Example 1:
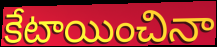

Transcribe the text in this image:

కేటాయించినా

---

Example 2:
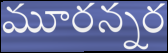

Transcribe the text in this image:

మూరన్నర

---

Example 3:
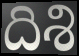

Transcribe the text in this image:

దిశి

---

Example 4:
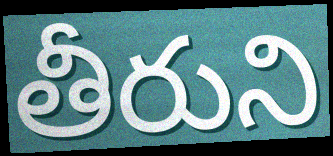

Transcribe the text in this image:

తీరుని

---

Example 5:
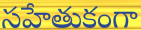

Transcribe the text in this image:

సహేతుకంగా